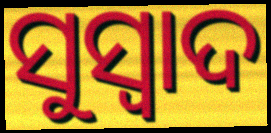
ସୁସ୍ୱାଦ